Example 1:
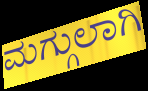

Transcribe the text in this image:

ಮಗ್ಗುಲಾಗಿ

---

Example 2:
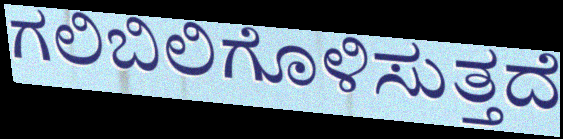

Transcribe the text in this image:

ಗಲಿಬಿಲಿಗೊಳಿಸುತ್ತದೆ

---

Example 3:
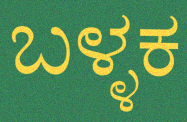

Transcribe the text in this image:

ಬಳ್ಳಕ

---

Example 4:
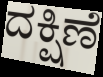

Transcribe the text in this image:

ದಕ್ಷಿಣೆ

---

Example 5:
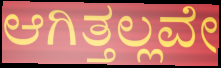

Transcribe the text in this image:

ಆಗಿತ್ತಲ್ಲವೇ